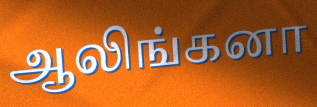
ஆலிங்கனா